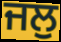
ਜਲੁ